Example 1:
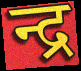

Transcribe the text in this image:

न्द्र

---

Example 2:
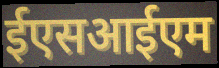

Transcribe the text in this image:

ईएसआईएम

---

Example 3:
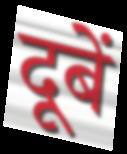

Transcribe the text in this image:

दूबें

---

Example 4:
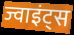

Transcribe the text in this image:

ज्वाइंट्स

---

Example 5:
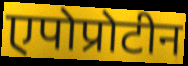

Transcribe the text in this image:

एपोप्रोटीन